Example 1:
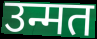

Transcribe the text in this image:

उन्मत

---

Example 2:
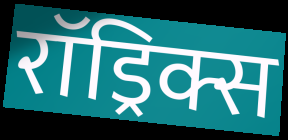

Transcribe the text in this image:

रॉड्रिक्स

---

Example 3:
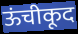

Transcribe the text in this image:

ऊंचीकूद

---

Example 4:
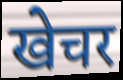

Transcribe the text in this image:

खेचर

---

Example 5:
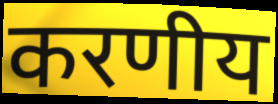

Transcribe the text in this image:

करणीय